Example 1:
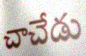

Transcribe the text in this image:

చాచేడు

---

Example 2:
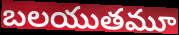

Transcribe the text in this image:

బలయుతమూ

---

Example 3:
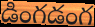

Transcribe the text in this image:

డింగడంగ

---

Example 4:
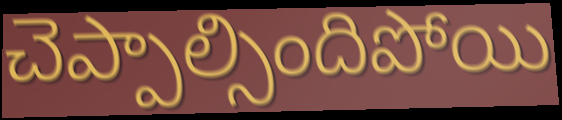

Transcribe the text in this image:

చెప్పాల్సిందిపోయి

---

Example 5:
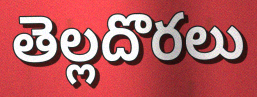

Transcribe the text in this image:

తెల్లదొరలు